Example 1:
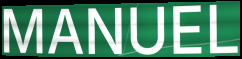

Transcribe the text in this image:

MANUEL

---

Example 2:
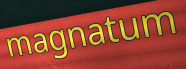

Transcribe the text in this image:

magnatum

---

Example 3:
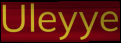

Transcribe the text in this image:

Uleyye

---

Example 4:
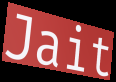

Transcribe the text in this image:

Jait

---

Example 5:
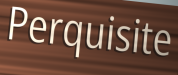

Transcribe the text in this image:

Perquisite